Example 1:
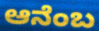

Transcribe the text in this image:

ಆನೆಂಬ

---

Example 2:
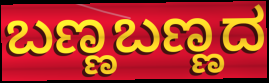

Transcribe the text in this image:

ಬಣ್ಣಬಣ್ಣದ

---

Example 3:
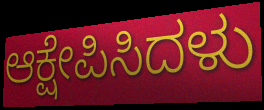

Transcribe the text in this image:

ಆಕ್ಷೇಪಿಸಿದಳು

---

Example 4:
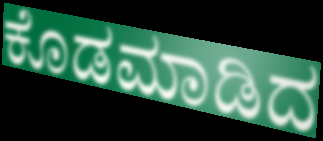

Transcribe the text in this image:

ಕೊಡಮಾಡಿದ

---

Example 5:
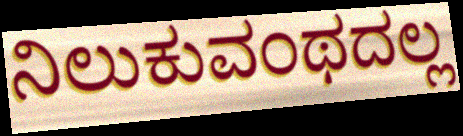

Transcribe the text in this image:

ನಿಲುಕುವಂಥದಲ್ಲ